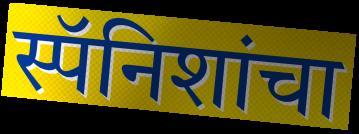
स्पॅनिशांचा